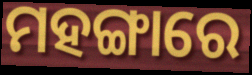
ମହଙ୍ଗାରେ